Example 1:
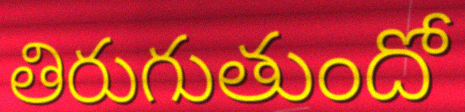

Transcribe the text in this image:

తిరుగుతుందో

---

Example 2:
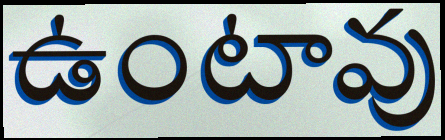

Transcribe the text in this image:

ఉంటావు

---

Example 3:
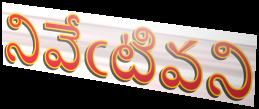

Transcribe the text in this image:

నివేఁటివని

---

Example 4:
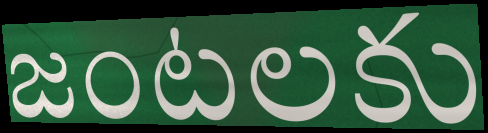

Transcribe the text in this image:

జంటలకు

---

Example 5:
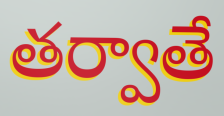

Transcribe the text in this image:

తర్వాతే